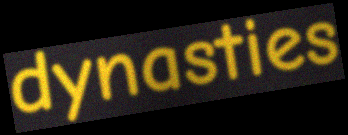
dynasties